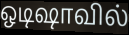
ஒடிஷாவில்